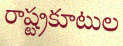
రాష్ట్రకూటుల